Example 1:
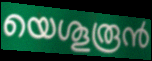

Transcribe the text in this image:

യെശൂരൂൻ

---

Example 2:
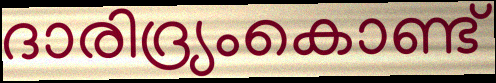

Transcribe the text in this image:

ദാരിദ്ര്യംകൊണ്ട്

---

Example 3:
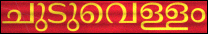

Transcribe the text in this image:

ചുടുവെള്ളം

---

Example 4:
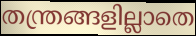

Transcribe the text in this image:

തന്ത്രങ്ങളില്ലാതെ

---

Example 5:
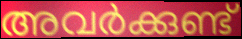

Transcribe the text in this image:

അവർക്കുണ്ട്